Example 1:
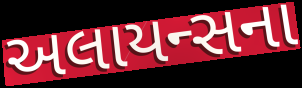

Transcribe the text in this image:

અલાયન્સના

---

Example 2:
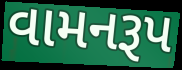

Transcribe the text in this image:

વામનરૂપ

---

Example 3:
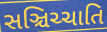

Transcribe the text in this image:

સઞ્ચિચ્ચાતિ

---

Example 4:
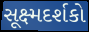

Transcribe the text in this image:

સૂક્ષ્મદર્શકો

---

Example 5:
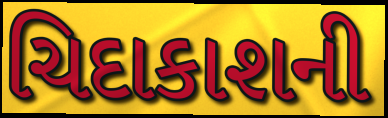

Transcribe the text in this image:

ચિદાકાશની